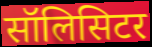
सॉलिसिटर